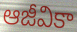
ఆజీవికా